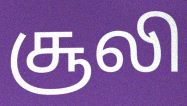
சூலி